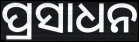
ପ୍ରସାଧନ